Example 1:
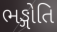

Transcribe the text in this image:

ભઙ્ગોતિ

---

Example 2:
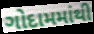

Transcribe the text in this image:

ગોદામમાંથી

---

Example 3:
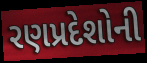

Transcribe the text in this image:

રણપ્રદેશોની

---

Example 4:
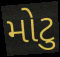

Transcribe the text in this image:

મોટુ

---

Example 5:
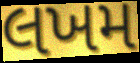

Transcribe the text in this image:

લખમ